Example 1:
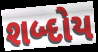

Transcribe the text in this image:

શબ્દોય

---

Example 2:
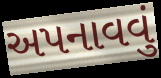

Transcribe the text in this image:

અપનાવવું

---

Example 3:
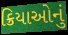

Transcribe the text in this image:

ક્રિયાઓનું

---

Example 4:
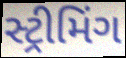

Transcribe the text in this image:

સ્ટ્રીમિંગ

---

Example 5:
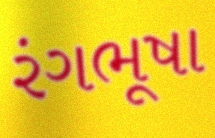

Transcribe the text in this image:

રંગભૂષા